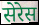
सेरेस